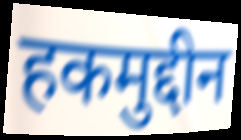
हकमुद्दीन